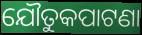
ଯୌତୁକପାଟଣା